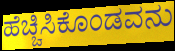
ಹೆಚ್ಚಿಸಿಕೊಂಡವನು